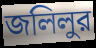
জলিলুর